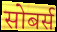
सोबर्स